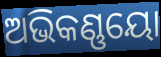
ଅଭିକଣ୍ଣୟୋ